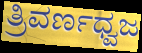
ತ್ರಿವರ್ಣಧ್ವಜ